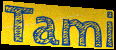
Tami